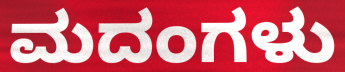
ಮದಂಗಳು